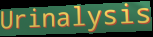
Urinalysis